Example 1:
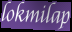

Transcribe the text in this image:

lokmilap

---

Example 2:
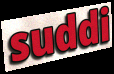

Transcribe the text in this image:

suddi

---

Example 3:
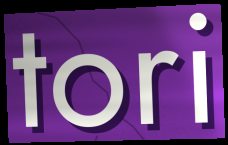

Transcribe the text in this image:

tori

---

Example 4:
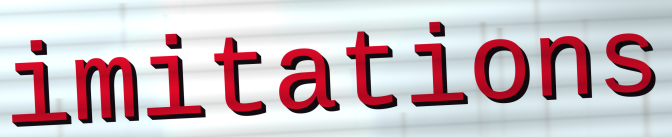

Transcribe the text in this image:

imitations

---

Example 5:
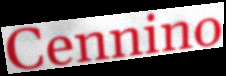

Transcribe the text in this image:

Cennino